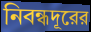
নিবন্ধদূরের